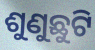
ଶୁଣୁଛୁଟି